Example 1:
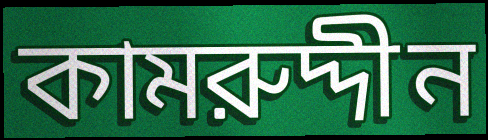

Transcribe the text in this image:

কামরুদ্দীন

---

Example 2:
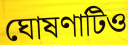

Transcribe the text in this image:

ঘোষণাটিও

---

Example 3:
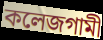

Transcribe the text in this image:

কলেজগামী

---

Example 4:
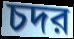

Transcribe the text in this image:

চদর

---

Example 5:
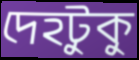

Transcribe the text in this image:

দেহটুকু